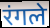
रंगले